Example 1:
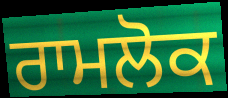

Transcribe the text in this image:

ਰਾਮਲੋਕ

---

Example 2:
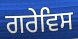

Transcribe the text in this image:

ਗਰੇਵਿਸ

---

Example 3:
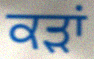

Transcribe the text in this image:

ਕੜਾਂ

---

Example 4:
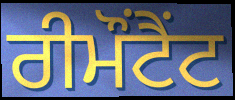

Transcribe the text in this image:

ਰੀਮੌਂਟੈਂਟ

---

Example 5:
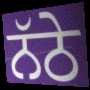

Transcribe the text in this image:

ਨੱਠੇ